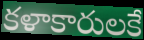
కళాకారులకే